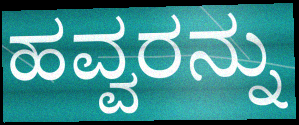
ಹವ್ವರನ್ನು